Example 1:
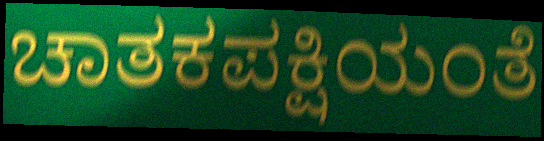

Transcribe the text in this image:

ಚಾತಕಪಕ್ಷಿಯಂತೆ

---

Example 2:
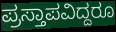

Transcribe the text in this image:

ಪ್ರಸ್ತಾಪವಿದ್ದರೂ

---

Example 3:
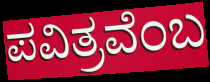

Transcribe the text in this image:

ಪವಿತ್ರವೆಂಬ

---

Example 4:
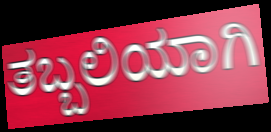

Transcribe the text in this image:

ತಬ್ಬಲಿಯಾಗಿ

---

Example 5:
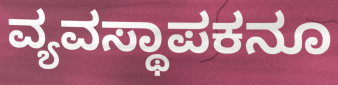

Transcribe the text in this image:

ವ್ಯವಸ್ಥಾಪಕನೂ